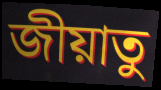
জীয়াতু